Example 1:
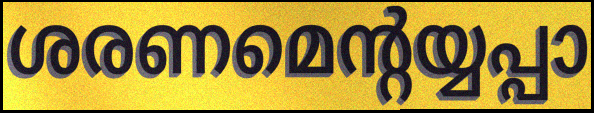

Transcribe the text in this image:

ശരണമെന്റയ്യപ്പാ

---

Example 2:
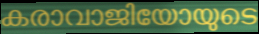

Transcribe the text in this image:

കരാവാജിയോയുടെ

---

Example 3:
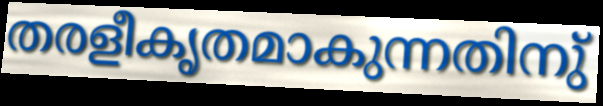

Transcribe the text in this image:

തരളീകൃതമാകുന്നതിനു്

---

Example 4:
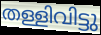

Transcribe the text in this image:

തള്ളിവിട്ടു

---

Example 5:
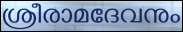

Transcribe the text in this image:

ശ്രീരാമദേവനും